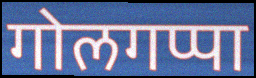
गोलगप्पा